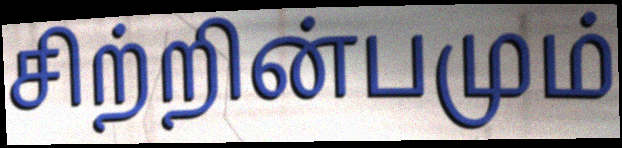
சிற்றின்பமும்